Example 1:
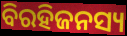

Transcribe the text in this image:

ବିରହିଜନସ୍ୟ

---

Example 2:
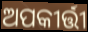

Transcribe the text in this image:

ଅପକୀର୍ତ୍ତୀ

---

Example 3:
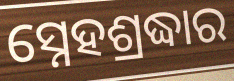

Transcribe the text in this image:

ସ୍ନେହଶ୍ରଦ୍ଧାର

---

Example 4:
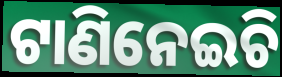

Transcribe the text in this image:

ଟାଣିନେଇଚି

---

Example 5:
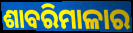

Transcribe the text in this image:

ଶାବରିମାଳାର